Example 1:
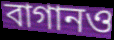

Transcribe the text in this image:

বাগানও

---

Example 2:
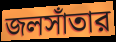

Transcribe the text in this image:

জলসাঁতার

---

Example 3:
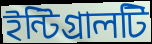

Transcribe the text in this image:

ইন্টিগ্রালটি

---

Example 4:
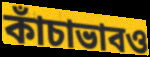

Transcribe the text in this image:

কাঁচাভাবও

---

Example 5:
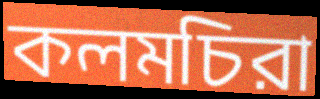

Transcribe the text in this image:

কলমচিরা